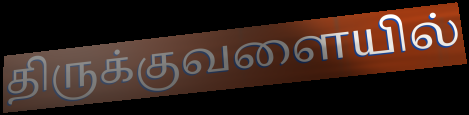
திருக்குவளையில்